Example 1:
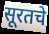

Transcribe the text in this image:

सूरतचे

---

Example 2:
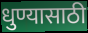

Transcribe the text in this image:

धुण्यासाठी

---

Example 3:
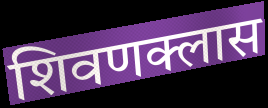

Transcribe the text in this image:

शिवणक्लास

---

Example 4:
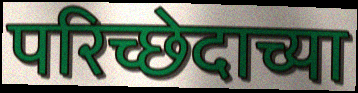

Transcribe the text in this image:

परिच्छेदाच्या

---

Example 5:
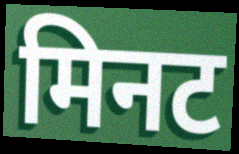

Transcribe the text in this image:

मिनट